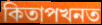
কিতাপখনত